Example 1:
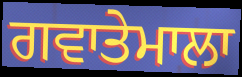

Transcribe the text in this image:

ਗਵਾਤੇਮਾਲਾ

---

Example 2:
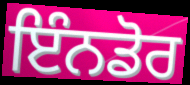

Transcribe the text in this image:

ਇੰਨਡੋਰ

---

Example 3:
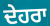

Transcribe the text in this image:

ਦੇਹਰਾ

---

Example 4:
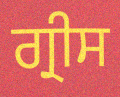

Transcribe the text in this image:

ਗ੍ਰੀਸ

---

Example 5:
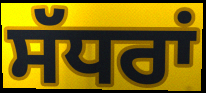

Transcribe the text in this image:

ਸੱਧਰਾਂ